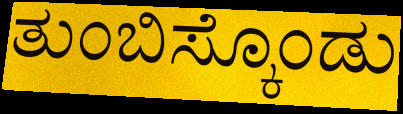
ತುಂಬಿಸ್ಕೊಂಡು